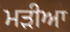
ਮਡ਼ੀਆ